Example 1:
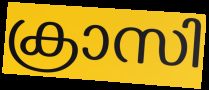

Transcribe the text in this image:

ക്രാസി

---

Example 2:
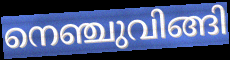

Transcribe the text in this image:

നെഞ്ചുവിങ്ങി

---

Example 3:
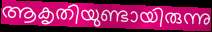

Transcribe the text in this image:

ആകൃതിയുണ്ടായിരുന്നു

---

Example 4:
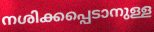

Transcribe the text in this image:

നശിക്കപ്പെടാനുള്ള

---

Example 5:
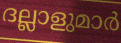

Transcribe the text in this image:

ദല്ലാളുമാർ